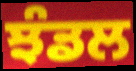
ਝੰਡਲ